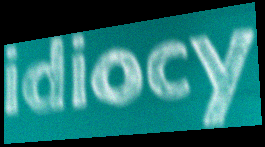
idiocy